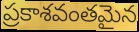
ప్రకాశవంతమైన